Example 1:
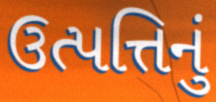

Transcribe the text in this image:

ઉત્પત્તિનું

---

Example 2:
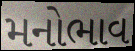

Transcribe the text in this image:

મનોભાવ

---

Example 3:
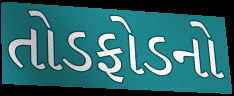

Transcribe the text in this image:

તોડફોડનો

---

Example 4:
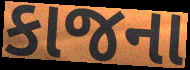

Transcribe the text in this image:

કાજના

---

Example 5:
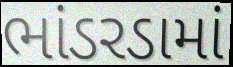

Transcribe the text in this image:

ભાંડરડામાં